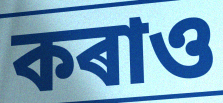
কৰাও